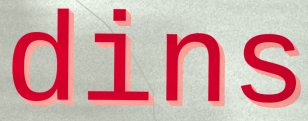
dins